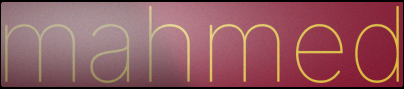
mahmed